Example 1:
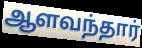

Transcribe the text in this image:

ஆளவந்தார்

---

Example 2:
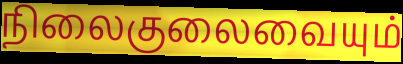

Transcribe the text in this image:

நிலைகுலைவையும்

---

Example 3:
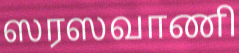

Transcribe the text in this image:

ஸரஸவாணி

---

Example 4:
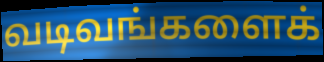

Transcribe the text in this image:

வடிவங்களைக்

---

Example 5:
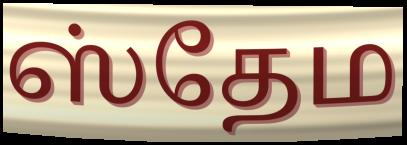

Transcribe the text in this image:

ஸ்தேம